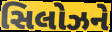
સિલોઝને